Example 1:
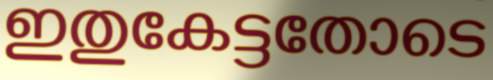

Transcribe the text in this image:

ഇതുകേട്ടതോടെ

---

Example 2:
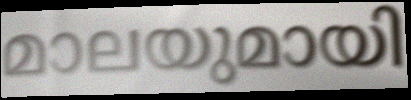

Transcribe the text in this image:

മാലയുമായി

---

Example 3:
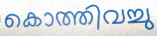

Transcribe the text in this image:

കൊത്തിവച്ചു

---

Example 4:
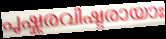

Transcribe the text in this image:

പുഷ്കരവിഷ്ടരായാഃ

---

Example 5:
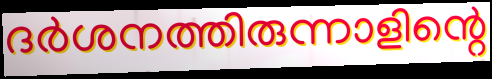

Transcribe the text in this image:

ദർശനത്തിരുന്നാളിന്റെ